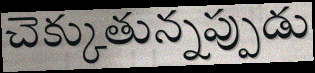
చెక్కుతున్నప్పుడు